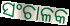
ସଂଚାଳକ